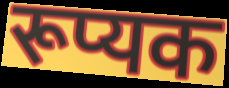
रूप्यक